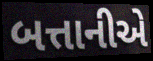
બત્તાનીએ